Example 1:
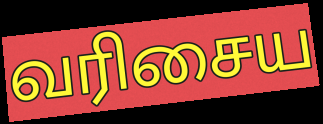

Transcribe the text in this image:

வரிசைய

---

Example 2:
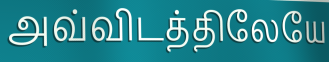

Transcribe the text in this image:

அவ்விடத்திலேயே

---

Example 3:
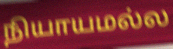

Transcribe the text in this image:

நியாயமல்ல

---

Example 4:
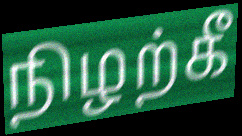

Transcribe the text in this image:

நிழற்கீ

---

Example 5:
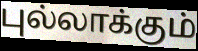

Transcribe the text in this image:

புல்லாக்கும்